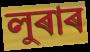
লুৰাৰ